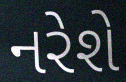
નરેશે